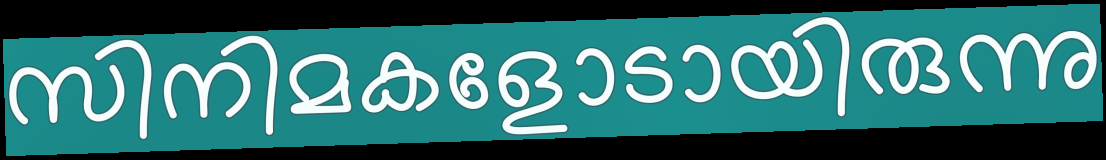
സിനിമകളോടായിരുന്നു